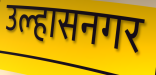
उल्हासनगर